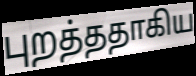
புறத்ததாகிய